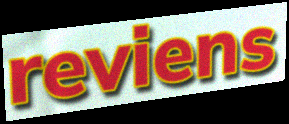
reviens